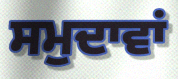
ਸਮੁਦਾਵਾਂ